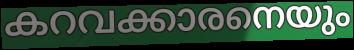
കറവക്കാരനെയും